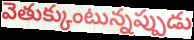
వెతుక్కుంటున్నప్పుడు